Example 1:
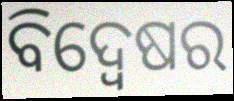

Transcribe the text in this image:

ବିଦ୍ବେଷର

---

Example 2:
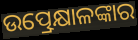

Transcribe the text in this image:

ଉତ୍ପ୍ରେକ୍ଷାଳଙ୍କାର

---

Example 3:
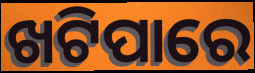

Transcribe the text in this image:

ଖଟିପାରେ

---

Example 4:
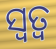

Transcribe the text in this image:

ସ୍ୱତ୍ୱ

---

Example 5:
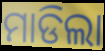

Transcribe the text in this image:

ମାଡିଲା